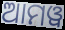
ଆମୱ